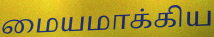
மையமாக்கிய